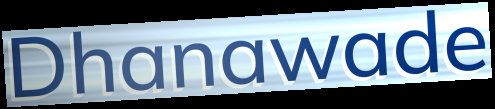
Dhanawade